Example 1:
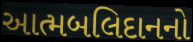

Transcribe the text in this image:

આત્મબલિદાનનો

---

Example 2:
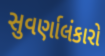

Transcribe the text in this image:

સુવર્ણાલંકારો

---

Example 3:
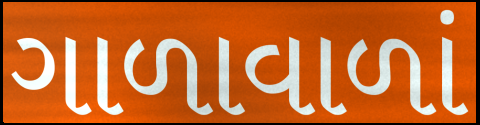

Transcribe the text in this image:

ગાળાવાળાં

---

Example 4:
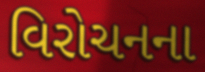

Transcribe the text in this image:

વિરોચનના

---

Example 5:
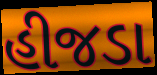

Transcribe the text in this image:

હીજડા